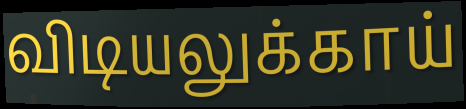
விடியலுக்காய்